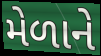
મેળાને